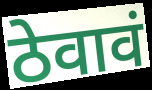
ठेवावं